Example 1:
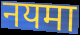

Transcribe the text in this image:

नयमा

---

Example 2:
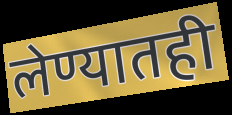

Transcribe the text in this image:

लेण्यातही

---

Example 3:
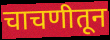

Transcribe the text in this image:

चाचणीतून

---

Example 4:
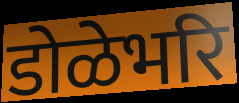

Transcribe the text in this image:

डोळेभरि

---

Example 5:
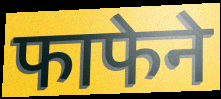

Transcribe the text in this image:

फाफेने